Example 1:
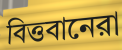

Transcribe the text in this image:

বিত্তবানেরা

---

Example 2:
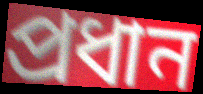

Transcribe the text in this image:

প্রধান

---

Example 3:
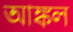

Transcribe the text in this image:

আঙ্কল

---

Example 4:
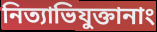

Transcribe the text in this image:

নিত্যাভিযুক্তানাং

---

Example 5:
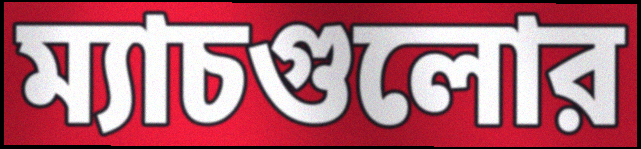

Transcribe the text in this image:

ম্যাচগুলোর